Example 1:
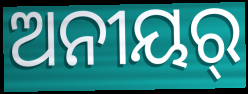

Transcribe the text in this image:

ଅନୀୟର୍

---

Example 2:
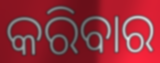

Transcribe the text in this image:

କରିବାର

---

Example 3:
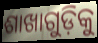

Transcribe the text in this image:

ଶାଖାଗୁଡ଼ିକୁ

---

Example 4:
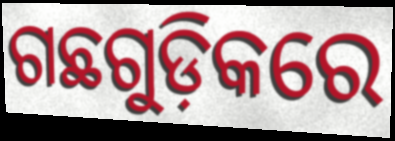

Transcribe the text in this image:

ଗଛଗୁଡ଼ିକରେ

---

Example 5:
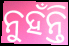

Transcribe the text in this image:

ନୁହଁନ୍ତି